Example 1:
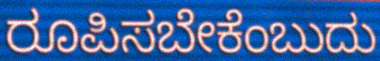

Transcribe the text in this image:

ರೂಪಿಸಬೇಕೆಂಬುದು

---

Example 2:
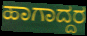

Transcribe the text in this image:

ಹಾಗಾದ್ದರ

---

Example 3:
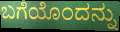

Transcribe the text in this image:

ಬಗೆಯೊಂದನ್ನು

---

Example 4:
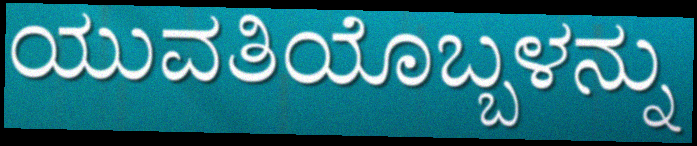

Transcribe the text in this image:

ಯುವತಿಯೊಬ್ಬಳನ್ನು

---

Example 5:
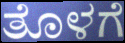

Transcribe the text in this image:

ತೊಳಗೆ